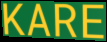
KARE